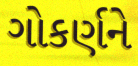
ગોકર્ણને